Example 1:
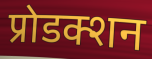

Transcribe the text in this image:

प्रोडक्शन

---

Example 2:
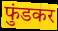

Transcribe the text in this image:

फुंडकर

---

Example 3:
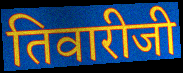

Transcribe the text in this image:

तिवारीजी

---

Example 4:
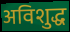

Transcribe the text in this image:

अविशुद्ध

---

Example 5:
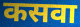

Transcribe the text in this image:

कसवा